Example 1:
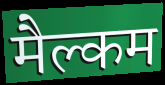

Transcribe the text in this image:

मैल्कम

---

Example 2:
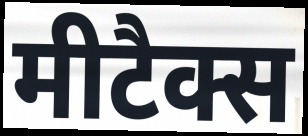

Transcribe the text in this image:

मीटैक्स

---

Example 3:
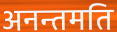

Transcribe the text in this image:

अनन्तमति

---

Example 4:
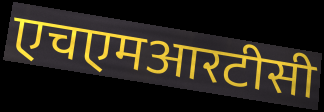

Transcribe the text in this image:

एचएमआरटीसी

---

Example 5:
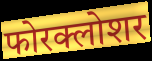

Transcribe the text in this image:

फोरक्लोशर